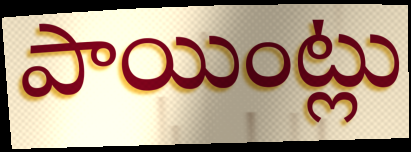
పాయింట్లు